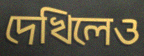
দেখিলেও